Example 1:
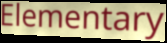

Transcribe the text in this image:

Elementary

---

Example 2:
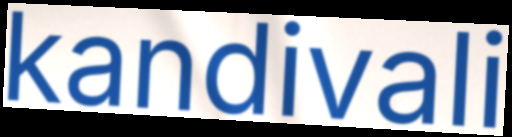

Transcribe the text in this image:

kandivali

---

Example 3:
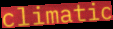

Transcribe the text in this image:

climatic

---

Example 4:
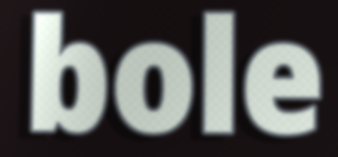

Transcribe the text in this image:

bole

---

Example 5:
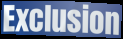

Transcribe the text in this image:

Exclusion